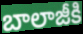
బాలాజీకి